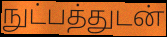
நுட்பத்துடன்